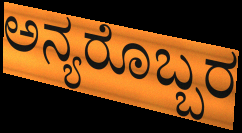
ಅನ್ಯರೊಬ್ಬರ